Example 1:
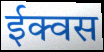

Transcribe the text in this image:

ईक्‍वस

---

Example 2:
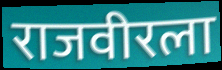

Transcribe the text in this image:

राजवीरला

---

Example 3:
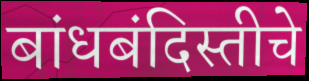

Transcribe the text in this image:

बांधबंदिस्तीचे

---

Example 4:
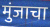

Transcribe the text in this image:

मुंजाचा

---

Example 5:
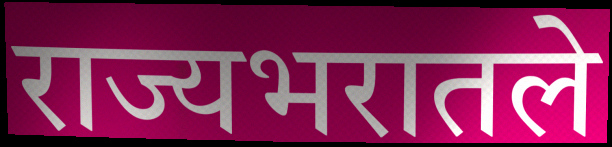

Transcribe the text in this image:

राज्यभरातले